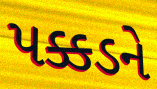
પક્કડને